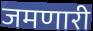
जमणारी